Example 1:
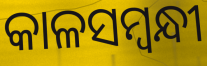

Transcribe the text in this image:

କାଳସମ୍ଵନ୍ଧୀ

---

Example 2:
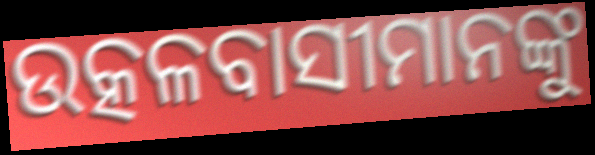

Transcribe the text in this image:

ଉତ୍କଳବାସୀମାନଙ୍କୁ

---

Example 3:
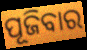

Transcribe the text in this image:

ପୂଜିବାର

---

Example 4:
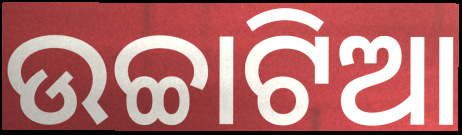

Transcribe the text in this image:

ଉଚ୍ଚାଟିଆ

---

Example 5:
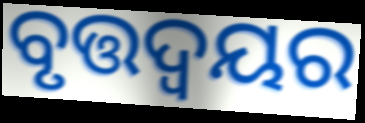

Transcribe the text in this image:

ବୃତ୍ତଦ୍ଵୟର